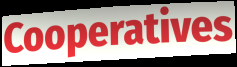
Cooperatives